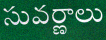
సువర్ణాలు